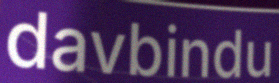
davbindu